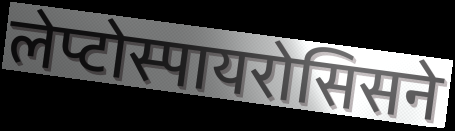
लेप्टोस्पायरोसिसने